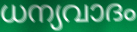
ധന്യവാദം